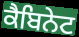
ਕੈਬਿਨੇਟ